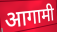
आगामी